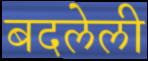
बदलेली